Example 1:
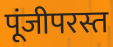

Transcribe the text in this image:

पूंजीपरस्त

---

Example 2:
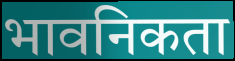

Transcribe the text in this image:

भावनिकता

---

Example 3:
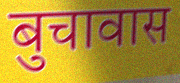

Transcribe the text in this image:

बुचावास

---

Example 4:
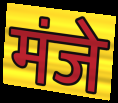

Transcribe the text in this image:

मंजे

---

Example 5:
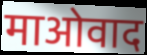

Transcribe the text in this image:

माओवाद